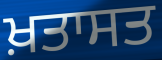
ਖ਼ਤਾਸਤ